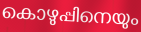
കൊഴുപ്പിനെയും